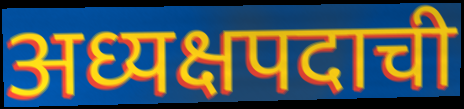
अध्यक्षपदाची